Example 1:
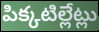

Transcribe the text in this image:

పిక్కటిల్లేట్లు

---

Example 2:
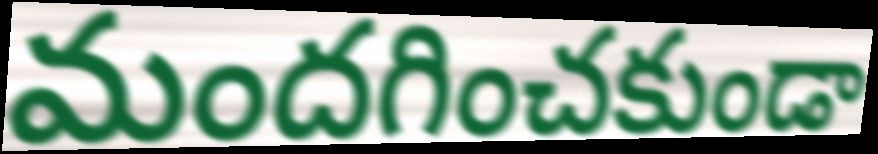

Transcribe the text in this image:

మందగించకుండా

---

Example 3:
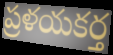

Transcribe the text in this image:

ప్రళయకర్త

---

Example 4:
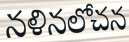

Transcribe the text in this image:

నళినలోచన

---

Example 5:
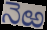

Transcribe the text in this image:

నెఱ